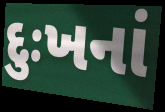
દુઃખનાં